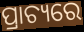
ପ୍ରାଚ୍ୟରେ